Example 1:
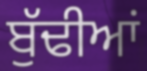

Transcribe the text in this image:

ਬੁੱਢੀਆਂ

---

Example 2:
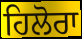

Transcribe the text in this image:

ਹਿਲੋਰਾ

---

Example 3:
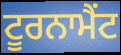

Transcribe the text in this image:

ਟੂਰਨਾਮੈਂਟ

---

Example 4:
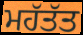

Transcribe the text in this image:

ਮਹੱਤੱਤ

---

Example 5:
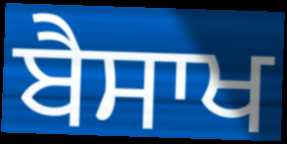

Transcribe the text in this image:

ਬੈਸਾਖ